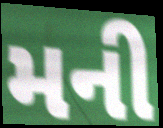
મની